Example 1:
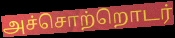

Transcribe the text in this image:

அச்சொற்றொடர்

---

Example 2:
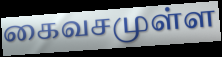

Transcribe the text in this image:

கைவசமுள்ள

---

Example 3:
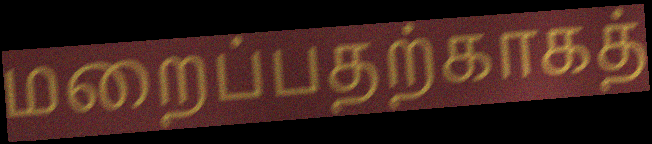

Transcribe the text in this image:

மறைப்பதற்காகத்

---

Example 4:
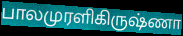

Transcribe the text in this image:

பாலமுரளிகிருஷ்ணா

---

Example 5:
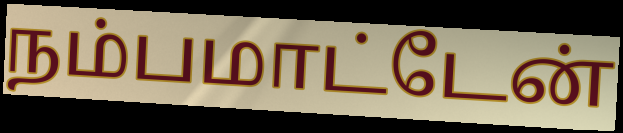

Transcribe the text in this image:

நம்பமாட்டேன்